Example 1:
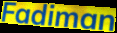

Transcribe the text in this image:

Fadiman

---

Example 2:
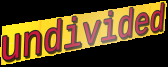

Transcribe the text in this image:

undivided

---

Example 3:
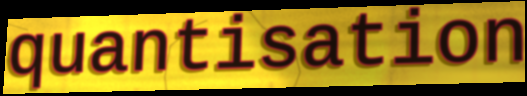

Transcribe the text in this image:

quantisation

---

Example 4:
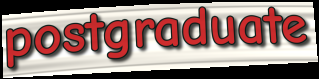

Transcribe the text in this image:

postgraduate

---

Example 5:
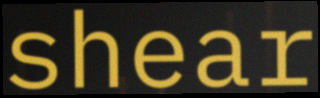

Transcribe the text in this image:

shear